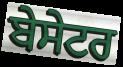
ਬੇਸੇਟਰ